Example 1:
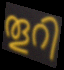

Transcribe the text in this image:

തൂറി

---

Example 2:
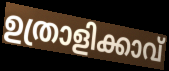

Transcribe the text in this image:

ഉത്രാളിക്കാവ്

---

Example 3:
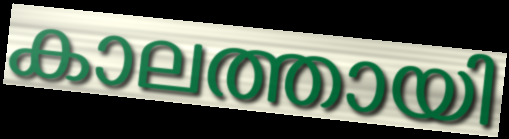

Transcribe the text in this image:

കാലത്തായി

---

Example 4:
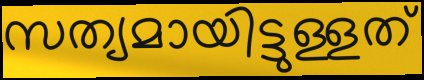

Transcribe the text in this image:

സത്യമായിട്ടുള്ളത്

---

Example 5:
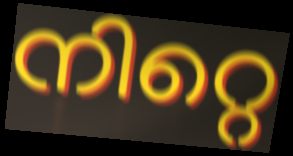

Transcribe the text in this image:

നിറ്റെ